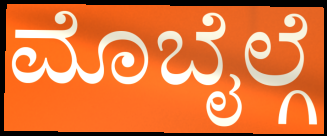
ಮೊಬೈಲ್ಗೆ